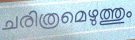
ചരിത്രമെഴുത്തും